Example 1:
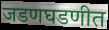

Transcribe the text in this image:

जडणघडणीत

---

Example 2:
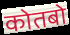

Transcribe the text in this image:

कोतबो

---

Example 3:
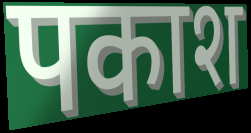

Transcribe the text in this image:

पकाश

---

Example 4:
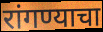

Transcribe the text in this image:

रांगण्याचा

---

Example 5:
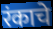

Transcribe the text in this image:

रंकाचे